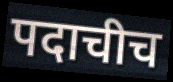
पदाचीच